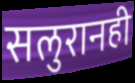
सलुरानही